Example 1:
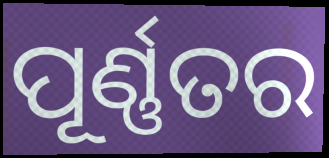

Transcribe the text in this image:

ପୂର୍ଣ୍ଣତର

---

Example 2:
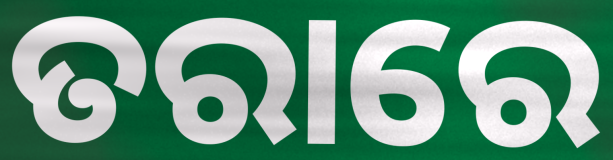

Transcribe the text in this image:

ତରାରେ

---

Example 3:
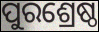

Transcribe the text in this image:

ପୁରଶ୍ରେଷ୍ଠ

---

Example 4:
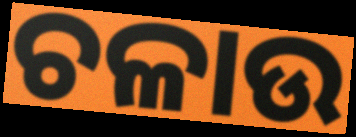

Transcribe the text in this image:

ଚଳାଉ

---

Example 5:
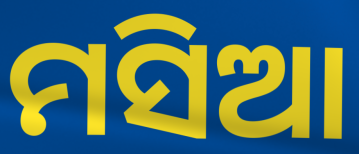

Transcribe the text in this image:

ମସିଆ